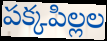
పక్కపిల్లల